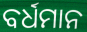
ବର୍ଧମାନ